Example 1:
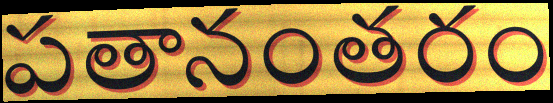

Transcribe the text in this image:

పతానంతరం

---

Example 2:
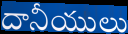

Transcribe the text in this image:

దానీయులు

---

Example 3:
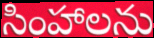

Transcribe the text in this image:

సింహాలను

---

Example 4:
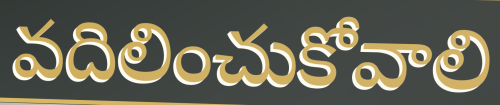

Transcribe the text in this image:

వదిలించుకోవాలి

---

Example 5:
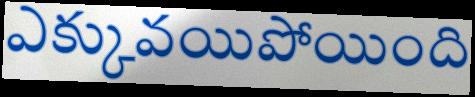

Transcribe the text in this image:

ఎక్కువయిపోయింది